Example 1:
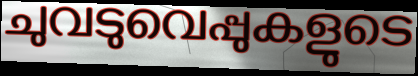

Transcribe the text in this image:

ചുവടുവെപ്പുകളുടെ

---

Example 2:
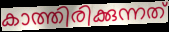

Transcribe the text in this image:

കാത്തിരിക്കുന്നത്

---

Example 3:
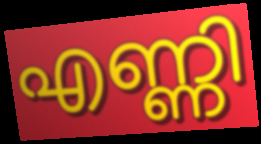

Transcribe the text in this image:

എണ്ണി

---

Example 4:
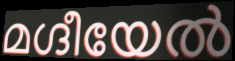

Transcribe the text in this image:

മഗ്ദീയേൽ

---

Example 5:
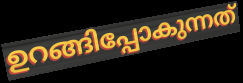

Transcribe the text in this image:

ഉറങ്ങിപ്പോകുന്നത്